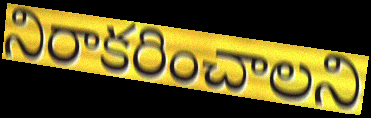
నిరాకరించాలని